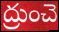
ద్రుంచె